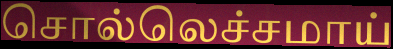
சொல்லெச்சமாய்